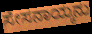
ಸೇಸನಾಯ್ಕನು